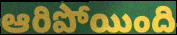
ఆరిపోయింది